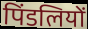
पिंडलियों